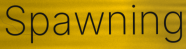
Spawning